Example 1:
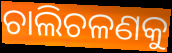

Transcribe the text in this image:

ଚାଲିଚଳଣକୁ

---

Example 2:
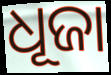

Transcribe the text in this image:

ଧୂଜା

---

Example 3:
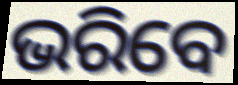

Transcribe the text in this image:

ଭରିବେ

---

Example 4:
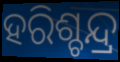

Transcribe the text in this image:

ହରିଶ୍ଚନ୍ଦ୍ର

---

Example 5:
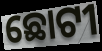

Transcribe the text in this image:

ଛୋଟୀ